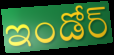
ఇండోర్